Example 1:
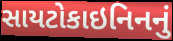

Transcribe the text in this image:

સાયટોકાઇનિનનું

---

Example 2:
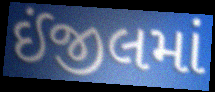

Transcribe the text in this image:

ઈંજીલમાં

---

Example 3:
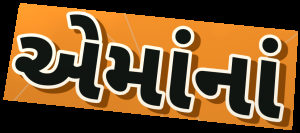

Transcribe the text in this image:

એમાંનાં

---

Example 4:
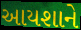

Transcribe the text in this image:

આયશાને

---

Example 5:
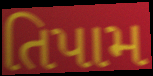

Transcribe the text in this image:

તિપામ